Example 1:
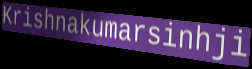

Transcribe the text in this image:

Krishnakumarsinhji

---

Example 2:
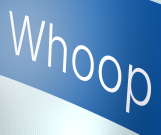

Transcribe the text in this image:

Whoop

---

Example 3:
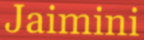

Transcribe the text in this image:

Jaimini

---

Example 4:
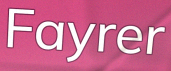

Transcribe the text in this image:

Fayrer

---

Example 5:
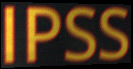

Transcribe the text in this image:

IPSS